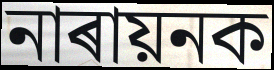
নাৰায়নক